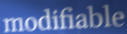
modifiable